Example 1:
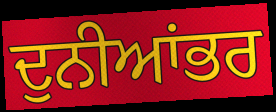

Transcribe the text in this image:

ਦੁਨੀਆਂਭਰ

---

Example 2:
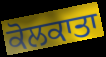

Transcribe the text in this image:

ਕੋਲਕਾਤਾ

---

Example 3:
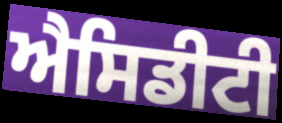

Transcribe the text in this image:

ਐਸਿਡੀਟੀ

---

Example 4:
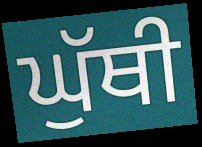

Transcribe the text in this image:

ਘੁੱਥੀ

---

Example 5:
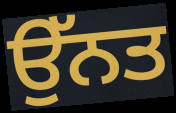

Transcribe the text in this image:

ਉੱਨਤ